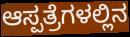
ಆಸ್ಪತ್ರೆಗಳಲ್ಲಿನ